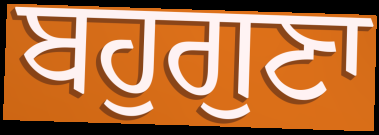
ਬਹੁਗੁਣਾ